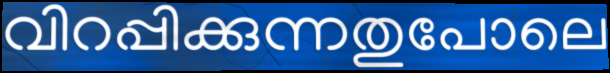
വിറപ്പിക്കുന്നതുപോലെ